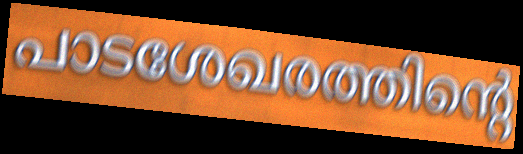
പാടശേഖരത്തിന്റെ